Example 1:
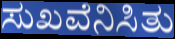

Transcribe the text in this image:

ಸುಖವೆನಿಸಿತು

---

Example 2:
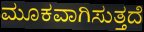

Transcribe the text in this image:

ಮೂಕವಾಗಿಸುತ್ತದೆ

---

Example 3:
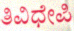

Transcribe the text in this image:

ತಿವಿಧೇಪಿ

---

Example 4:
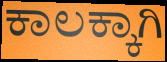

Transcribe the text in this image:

ಕಾಲಕ್ಕಾಗಿ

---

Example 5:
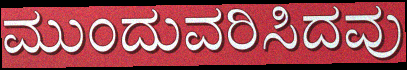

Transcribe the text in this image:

ಮುಂದುವರಿಸಿದವು